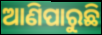
ଆଣିପାରୁଛି